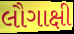
લૌગાક્ષી